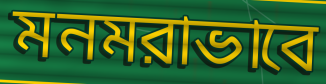
মনমরাভাবে